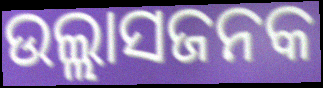
ଉଲ୍ଲାସଜନକ